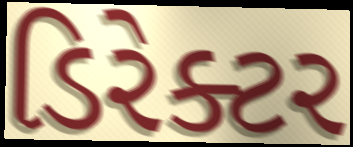
ડિરેક્ટર